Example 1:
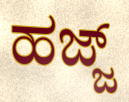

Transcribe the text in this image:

ಹಜ್ಜ್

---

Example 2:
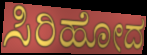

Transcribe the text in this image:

ಸಿರಿಹೋದ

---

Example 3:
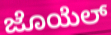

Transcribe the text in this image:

ಜೊಯೆಲ್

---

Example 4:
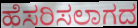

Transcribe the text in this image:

ಹೆಸರಿಸಲಾಗದ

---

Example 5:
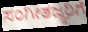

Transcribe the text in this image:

ಸಂಗೀತಜ್ಞರಿಗೆ